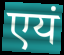
एयं